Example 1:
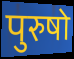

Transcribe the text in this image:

पुरुषो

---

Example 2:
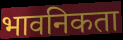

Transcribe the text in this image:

भावनिकता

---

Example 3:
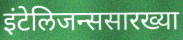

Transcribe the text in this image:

इंटेलिजन्ससारख्या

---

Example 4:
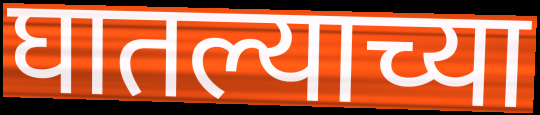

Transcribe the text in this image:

घातल्याच्या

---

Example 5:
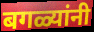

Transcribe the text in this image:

बगळ्यांनी